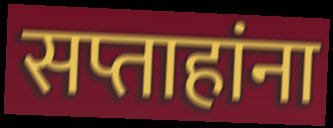
सप्ताहांना